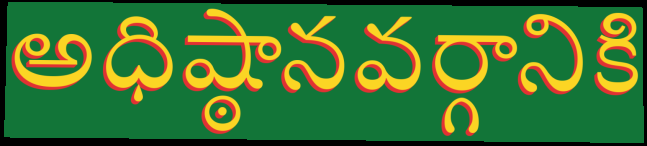
అధిష్ఠానవర్గానికి